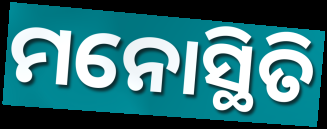
ମନୋସ୍ଥିତି